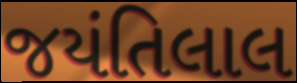
જયંતિલાલ